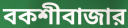
বকশীবাজার